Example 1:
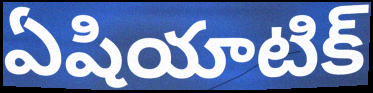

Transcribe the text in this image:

ఏషియాటిక్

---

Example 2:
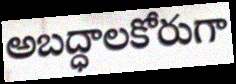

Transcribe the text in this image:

అబద్ధాలకోరుగా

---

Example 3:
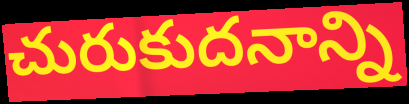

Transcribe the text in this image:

చురుకుదనాన్ని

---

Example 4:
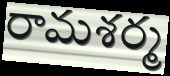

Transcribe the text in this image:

రామశర్మ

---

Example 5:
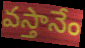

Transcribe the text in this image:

వస్తానేం